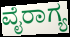
ವೈರಾಗ್ಯ